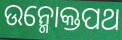
ଉନ୍ମୋକ୍ତପଥ